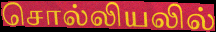
சொல்லியலில்